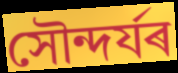
সৌন্দৰ্যৰ